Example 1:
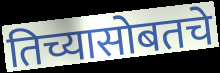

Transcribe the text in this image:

तिच्यासोबतचे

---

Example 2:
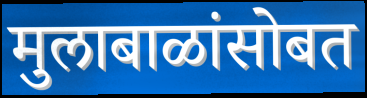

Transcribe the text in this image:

मुलाबाळांसोबत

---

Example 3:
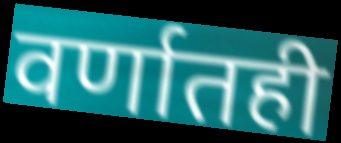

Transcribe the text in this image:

वर्णातही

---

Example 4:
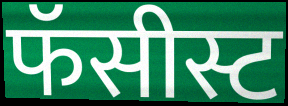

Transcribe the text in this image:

फॅसीस्ट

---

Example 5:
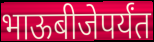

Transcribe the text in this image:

भाऊबीजेपर्यंत